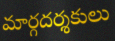
మార్గదర్శకులు